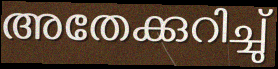
അതേക്കുറിച്ചു്